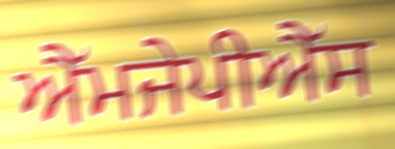
ਐੱਮਜੇਪੀਐੱਸ